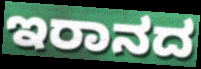
ಇರಾನದ